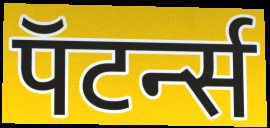
पॅटर्न्स